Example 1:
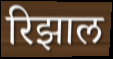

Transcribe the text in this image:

रिझाल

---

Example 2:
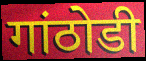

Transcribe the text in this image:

गांठोडी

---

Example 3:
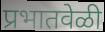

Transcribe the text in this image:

प्रभातवेळी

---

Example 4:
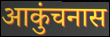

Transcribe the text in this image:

आकुंचनास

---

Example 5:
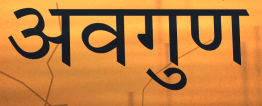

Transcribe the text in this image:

अवगुण